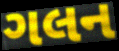
ગલન